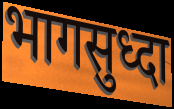
भागसुध्दा